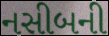
નસીબની